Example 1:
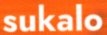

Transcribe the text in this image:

sukalo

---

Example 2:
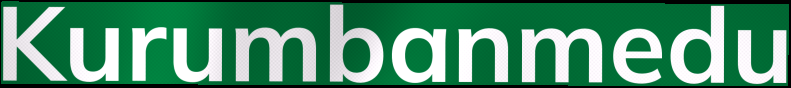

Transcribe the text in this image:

Kurumbanmedu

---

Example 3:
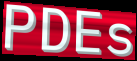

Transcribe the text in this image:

PDEs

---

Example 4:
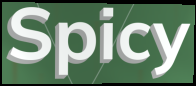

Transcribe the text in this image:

Spicy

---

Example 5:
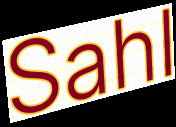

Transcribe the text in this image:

Sahl